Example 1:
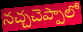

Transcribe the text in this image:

నచ్చచెప్పాలో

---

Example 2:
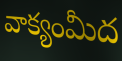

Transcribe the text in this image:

వాక్యంమీద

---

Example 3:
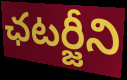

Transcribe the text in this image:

ఛటర్జీని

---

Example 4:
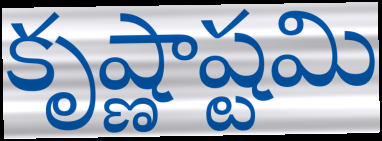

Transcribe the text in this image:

కృష్ణాష్టమి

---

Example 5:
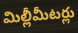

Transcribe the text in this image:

మిల్లీమీటర్లు